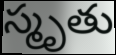
స్మృతు